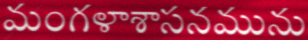
మంగళాశాసనమును